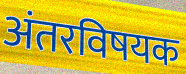
अंतरविषयक